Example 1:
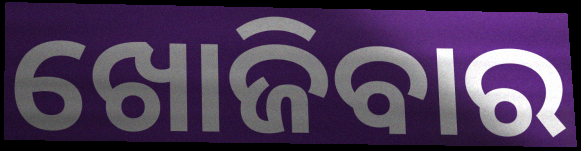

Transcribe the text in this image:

ଖୋଜିବାର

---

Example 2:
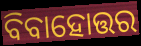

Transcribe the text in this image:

ବିବାହୋତ୍ତର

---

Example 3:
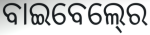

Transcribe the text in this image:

ବାଇବେଲ୍‍ରେ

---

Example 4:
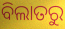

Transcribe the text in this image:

ବିଲାତରୁ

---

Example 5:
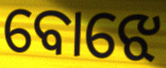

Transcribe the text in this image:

ବୋଝେ